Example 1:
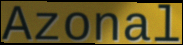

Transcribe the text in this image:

Azonal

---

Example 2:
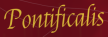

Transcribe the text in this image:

Pontificalis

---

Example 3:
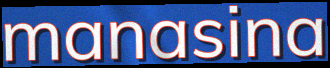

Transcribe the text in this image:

manasina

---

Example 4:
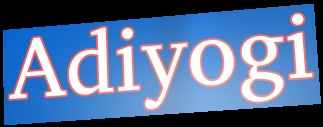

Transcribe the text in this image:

Adiyogi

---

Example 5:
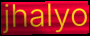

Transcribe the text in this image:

jhalyo